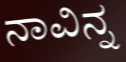
ನಾವಿನ್ನ